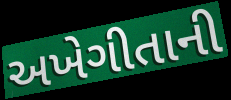
અખેગીતાની